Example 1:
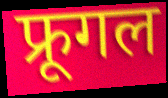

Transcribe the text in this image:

फ्रूगल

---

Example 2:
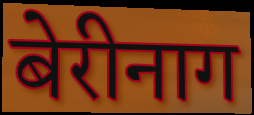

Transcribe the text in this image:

बेरीनाग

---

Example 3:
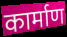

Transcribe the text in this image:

कार्माण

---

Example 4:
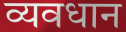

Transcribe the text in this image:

व्यवधान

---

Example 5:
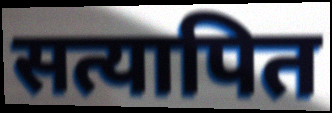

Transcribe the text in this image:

सत्यापित